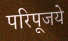
परिपूजये